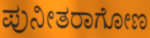
ಪುನೀತರಾಗೋಣ